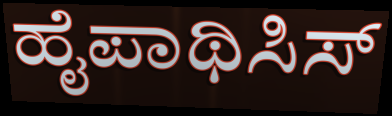
ಹೈಪಾಥಿಸಿಸ್